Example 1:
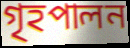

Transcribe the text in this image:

গৃহপালন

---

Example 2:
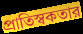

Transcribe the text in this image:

প্রাতিস্বকতার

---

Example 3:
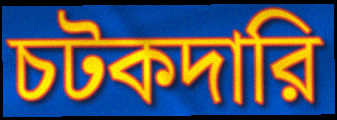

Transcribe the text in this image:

চটকদারি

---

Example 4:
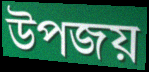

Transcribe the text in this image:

উপজয়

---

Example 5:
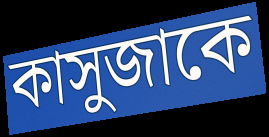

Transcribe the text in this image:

কাসুজাকে